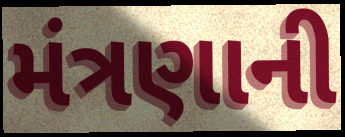
મંત્રણાની